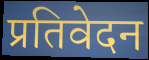
प्रतिवेदन